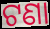
ଟଣା